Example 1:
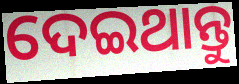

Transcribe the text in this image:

ଦେଇଥାନ୍ତୁ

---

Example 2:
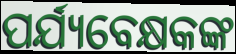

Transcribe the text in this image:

ପର୍ଯ୍ୟବେକ୍ଷକଙ୍କ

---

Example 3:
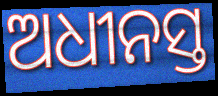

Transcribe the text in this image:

ଅଧୀନସ୍ତ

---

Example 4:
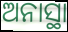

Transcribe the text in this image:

ଅନାସ୍ଥା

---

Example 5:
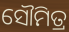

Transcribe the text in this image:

ସୌମିତ୍ର